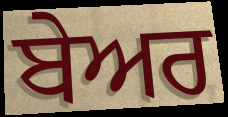
ਬੇਅਰ